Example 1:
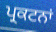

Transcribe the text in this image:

ਪ੍ਰਕਟਨਾਂ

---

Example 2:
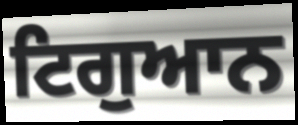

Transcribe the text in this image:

ਟਿਗੁਆਨ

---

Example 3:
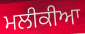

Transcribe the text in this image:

ਮਲੀਕੀਆ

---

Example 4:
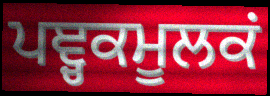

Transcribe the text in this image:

ਪਞ੍ਚਕਮੂਲਕਂ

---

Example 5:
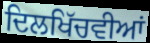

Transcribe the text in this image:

ਦਿਲਖਿੱਚਵੀਆਂ